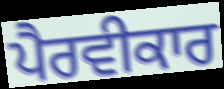
ਪੈਰਵੀਕਾਰ